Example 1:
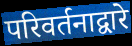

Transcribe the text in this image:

परिवर्तनाद्वारे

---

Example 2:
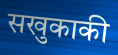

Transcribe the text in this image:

सखुकाकी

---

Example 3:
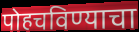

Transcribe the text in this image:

पोहचविण्याचा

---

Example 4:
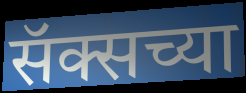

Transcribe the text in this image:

सॅक्सच्या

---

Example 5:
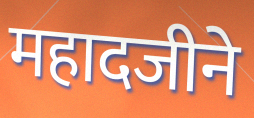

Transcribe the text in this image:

महादजीने